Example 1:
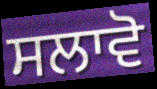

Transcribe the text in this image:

ਸਲਾਵੋ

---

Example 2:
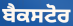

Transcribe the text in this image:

ਬੈਕਸਟੋਰ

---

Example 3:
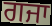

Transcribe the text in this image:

ਗਜਾ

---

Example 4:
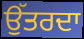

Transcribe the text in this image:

ਉੱਤਰਦਾ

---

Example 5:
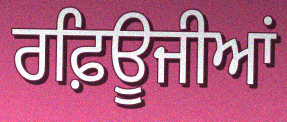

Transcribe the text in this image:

ਰਫ਼ਿਊਜੀਆਂ